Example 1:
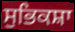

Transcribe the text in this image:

ਸੁਭਿਕਸ਼ਾ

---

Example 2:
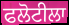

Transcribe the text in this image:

ਫਲੋਟੀਲਾ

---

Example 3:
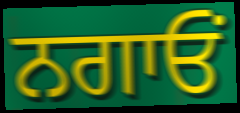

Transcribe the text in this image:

ਨਗਾਓਂ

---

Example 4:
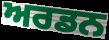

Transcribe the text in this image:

ਅਰਡਨ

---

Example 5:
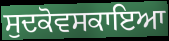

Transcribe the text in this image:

ਸੁਦਕੋਵਸਕਾਇਆ